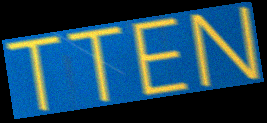
TTEN